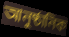
আনুষ্ঠানিক